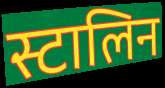
स्टालिन